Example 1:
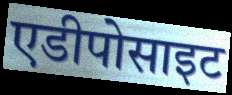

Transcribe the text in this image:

एडीपोसाइट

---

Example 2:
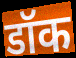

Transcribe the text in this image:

डॉक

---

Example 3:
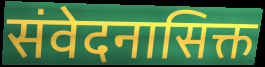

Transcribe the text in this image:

संवेदनासिक्त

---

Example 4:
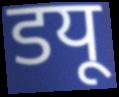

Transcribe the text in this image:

डयू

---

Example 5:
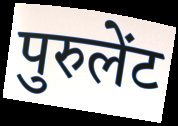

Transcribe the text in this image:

पुरुलेंट